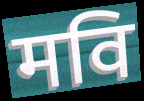
मवि